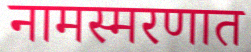
नामस्मरणात